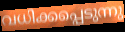
വധിക്കപ്പെടുന്നു